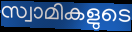
സ്വാമികളുടെ